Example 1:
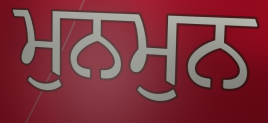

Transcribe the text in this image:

ਮੁਨਮੁਨ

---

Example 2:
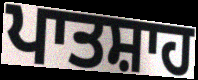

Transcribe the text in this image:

ਪਾਤਸ਼ਾਹ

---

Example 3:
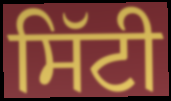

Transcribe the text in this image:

ਸਿੱਟੀ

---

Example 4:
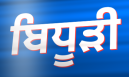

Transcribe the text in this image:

ਬਿਧੂੜੀ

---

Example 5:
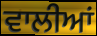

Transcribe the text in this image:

ਵਾਲੀਆਂ